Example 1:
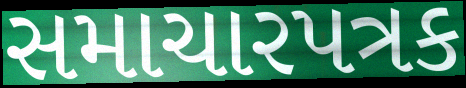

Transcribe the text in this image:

સમાચારપત્રક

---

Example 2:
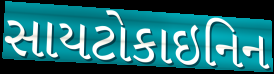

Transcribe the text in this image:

સાયટોકાઇનિન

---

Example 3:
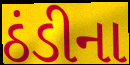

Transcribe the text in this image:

ઠંડીના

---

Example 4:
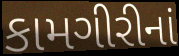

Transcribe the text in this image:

કામગીરીનાં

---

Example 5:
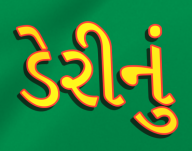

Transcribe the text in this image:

ડેરીનું